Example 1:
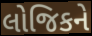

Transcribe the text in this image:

લોજિકને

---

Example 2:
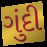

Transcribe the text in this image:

ગુંદી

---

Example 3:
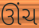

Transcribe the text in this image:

ઊંચ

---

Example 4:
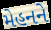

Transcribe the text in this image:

મેહનને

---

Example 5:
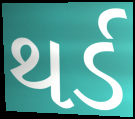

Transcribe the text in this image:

થર્ડ